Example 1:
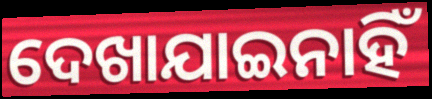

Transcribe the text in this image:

ଦେଖାଯାଇନାହିଁ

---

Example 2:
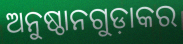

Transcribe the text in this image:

ଅନୁଷ୍ଠାନଗୁଡ଼ାକର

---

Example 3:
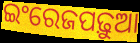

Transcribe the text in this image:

ଇଂରେଜପଢ଼ୁଆ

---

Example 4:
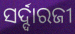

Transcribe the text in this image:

ସର୍ଦ୍ଦାରଜୀ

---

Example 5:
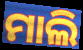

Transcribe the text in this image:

ମାଲି